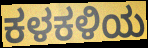
ಕಳಕಳಿಯ